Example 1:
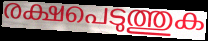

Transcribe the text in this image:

രക്ഷപെടുത്തുക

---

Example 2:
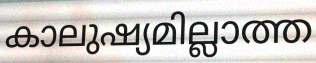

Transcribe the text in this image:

കാലുഷ്യമില്ലാത്ത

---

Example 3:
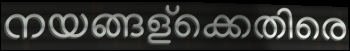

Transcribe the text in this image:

നയങ്ങള്ക്കെതിരെ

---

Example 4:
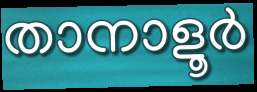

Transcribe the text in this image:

താനാളൂർ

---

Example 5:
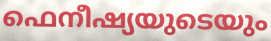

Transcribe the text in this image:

ഫെനീഷ്യയുടെയും